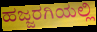
ಹಜ್ಜರಗಿಯಲ್ಲಿ